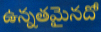
ఉన్నతమైనదో